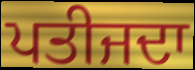
ਪਤੀਜਦਾ